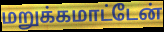
மறுக்கமாட்டேன்